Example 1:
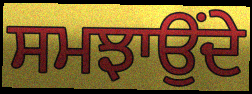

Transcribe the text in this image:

ਸਮਝਾਉੰਦੇ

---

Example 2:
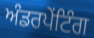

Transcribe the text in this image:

ਅੰਡਰਪੇਂਟਿੰਗ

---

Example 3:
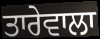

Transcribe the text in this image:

ਤਾਰੇਵਾਲਾ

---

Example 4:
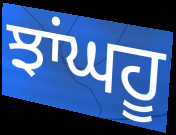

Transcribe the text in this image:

ਝਾਂਘਹੂ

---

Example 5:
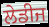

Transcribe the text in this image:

ਲੇਡੀਜ